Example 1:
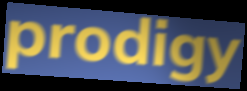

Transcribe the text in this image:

prodigy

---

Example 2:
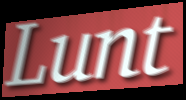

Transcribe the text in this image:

Lunt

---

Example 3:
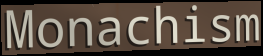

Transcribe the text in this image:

Monachism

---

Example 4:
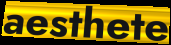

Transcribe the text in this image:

aesthete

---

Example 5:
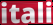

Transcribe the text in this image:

itali